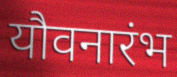
यौवनारंभ